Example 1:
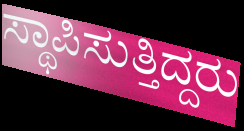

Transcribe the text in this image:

ಸ್ಥಾಪಿಸುತ್ತಿದ್ದರು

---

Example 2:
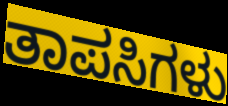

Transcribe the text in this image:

ತಾಪಸಿಗಳು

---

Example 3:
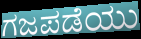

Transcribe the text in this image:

ಗಜಪಡೆಯು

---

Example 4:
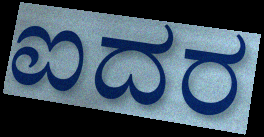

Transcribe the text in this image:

ಐದರ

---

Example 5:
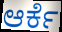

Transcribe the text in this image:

ಆರ್ಕೆ